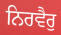
ਨਿਰਵੈਰੁ